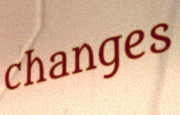
changes